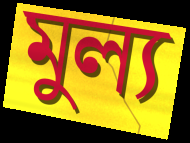
মুল্য